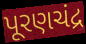
પૂરણચંદ્ર